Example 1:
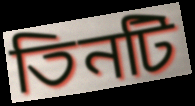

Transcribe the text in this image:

তিনটি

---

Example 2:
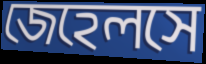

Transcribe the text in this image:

জেহেলসে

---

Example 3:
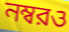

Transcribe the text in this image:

নম্বরও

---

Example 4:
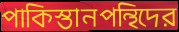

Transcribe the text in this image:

পাকিস্তানপন্থিদের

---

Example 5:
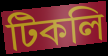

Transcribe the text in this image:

টিকলি